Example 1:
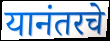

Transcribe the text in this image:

यानंतरचे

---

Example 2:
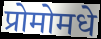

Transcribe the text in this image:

प्रोमोमधे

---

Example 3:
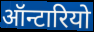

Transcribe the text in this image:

ऑन्टारियो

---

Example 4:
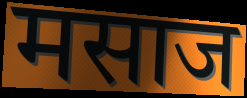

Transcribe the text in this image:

मसाज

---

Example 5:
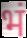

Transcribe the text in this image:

भं